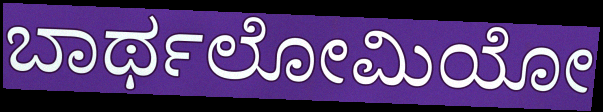
ಬಾರ್ಥಲೋಮಿಯೋ